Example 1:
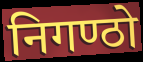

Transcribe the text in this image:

निगण्ठो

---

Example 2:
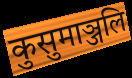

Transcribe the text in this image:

कुसुमाञ्जलि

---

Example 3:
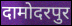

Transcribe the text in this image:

दामोदरपुर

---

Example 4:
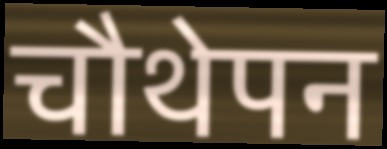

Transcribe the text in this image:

चौथेपन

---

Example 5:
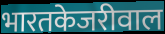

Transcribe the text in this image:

भारतकेजरीवाल